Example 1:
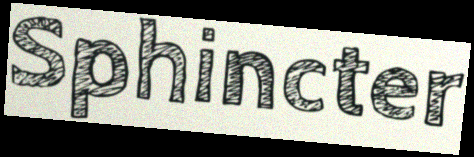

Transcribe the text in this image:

Sphincter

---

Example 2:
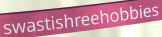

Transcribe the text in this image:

swastishreehobbies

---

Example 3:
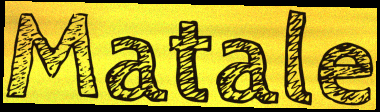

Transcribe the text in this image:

Matale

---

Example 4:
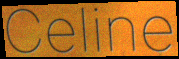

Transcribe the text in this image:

Celine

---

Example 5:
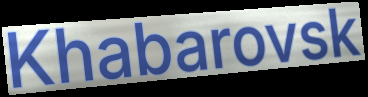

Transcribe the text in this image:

Khabarovsk